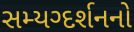
સમ્યગ્દર્શનનો